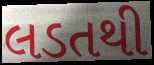
લડતથી